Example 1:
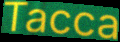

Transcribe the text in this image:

Tacca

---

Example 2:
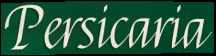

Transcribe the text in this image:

Persicaria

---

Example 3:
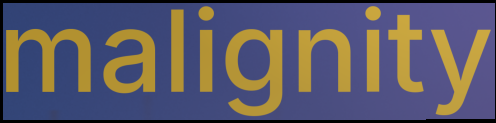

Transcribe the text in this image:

malignity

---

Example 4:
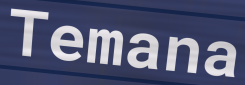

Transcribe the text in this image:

Temana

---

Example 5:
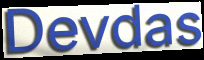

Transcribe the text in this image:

Devdas